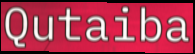
Qutaiba